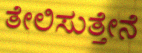
ತೇಲಿಸುತ್ತೇನೆ